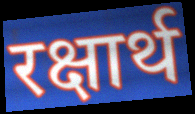
रक्षार्थ